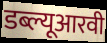
डब्ल्यूआरवी